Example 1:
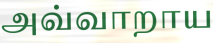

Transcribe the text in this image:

அவ்வாறாய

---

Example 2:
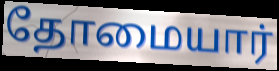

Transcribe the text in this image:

தோமையார்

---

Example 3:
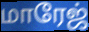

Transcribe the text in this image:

மாரேஜ்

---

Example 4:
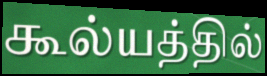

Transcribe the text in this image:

கூல்யத்தில்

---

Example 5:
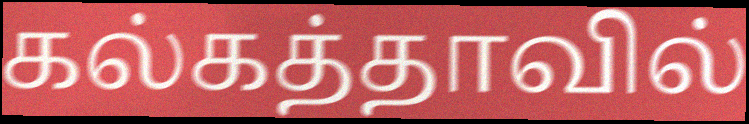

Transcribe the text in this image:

கல்கத்தாவில்